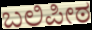
ಬಲಿಪೀಠ